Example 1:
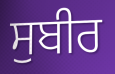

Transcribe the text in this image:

ਸੁਬੀਰ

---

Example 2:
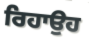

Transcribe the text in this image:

ਰਿਹਾਉਹ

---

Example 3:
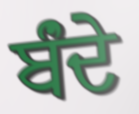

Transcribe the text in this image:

ਬਂੰਦੇ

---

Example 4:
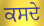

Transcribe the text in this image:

ਕਸਦੇ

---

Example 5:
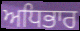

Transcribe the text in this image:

ਅਧਿਭਾਰ